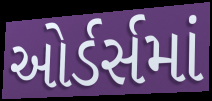
ઓર્ડર્સમાં